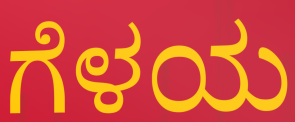
ಗೆಳಯ